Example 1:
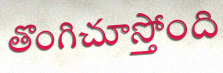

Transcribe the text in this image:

తొంగిచూస్తోంది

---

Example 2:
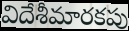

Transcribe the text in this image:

విదేశీమారకపు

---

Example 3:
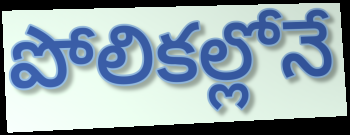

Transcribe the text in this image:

పోలికల్లోనే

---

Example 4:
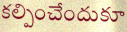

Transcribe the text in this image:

కల్పించేందుకూ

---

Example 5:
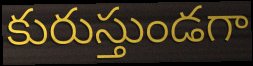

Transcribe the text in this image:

కురుస్తుండగా